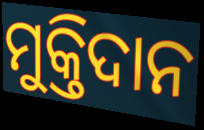
ମୁକ୍ତିଦାନ